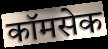
कॉमसेक